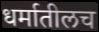
धर्मातीलच